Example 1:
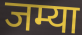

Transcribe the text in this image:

जम्या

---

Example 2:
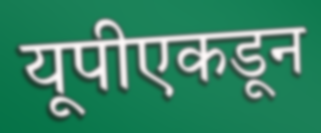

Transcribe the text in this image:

यूपीएकडून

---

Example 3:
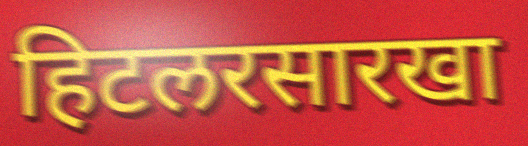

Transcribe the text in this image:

हिटलरसारखा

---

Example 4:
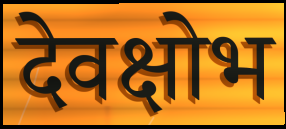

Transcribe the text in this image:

देवक्षोभ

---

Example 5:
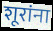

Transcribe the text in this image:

शूरांना